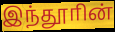
இந்தூரின்